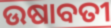
ଉଷାବତୀ